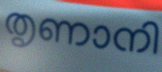
തൃണാനി